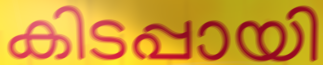
കിടപ്പായി